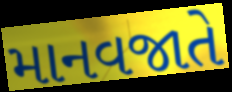
માનવજાતે